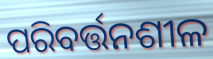
ପରିବର୍ତ୍ତନଶୀଳ